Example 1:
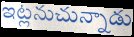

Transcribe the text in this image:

ఇట్లనుచున్నాడు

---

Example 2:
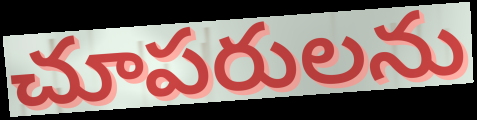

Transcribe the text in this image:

చూపరులను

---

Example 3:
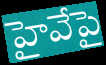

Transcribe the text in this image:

హైవేపై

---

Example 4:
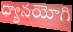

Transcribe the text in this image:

ధ్యానయోగి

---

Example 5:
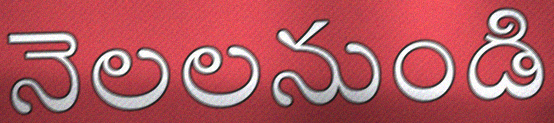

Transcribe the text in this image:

నెలలనుండి